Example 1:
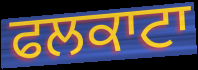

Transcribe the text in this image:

ਫਲਕਾਟਾ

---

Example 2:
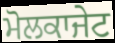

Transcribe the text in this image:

ਮੋਲਕਾਜੇਟ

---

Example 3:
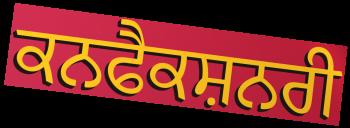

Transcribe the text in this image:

ਕਨਫੈਕਸ਼ਨਰੀ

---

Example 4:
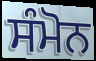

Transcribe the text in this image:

ਸੰਮੋਨ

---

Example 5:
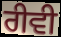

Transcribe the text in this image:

ਰੀਵੀ